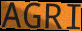
AGRI